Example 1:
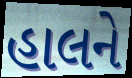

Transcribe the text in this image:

હાલને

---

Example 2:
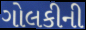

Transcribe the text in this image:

ગોલકીની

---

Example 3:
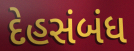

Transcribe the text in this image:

દેહસંબંધ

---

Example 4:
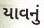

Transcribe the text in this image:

યાવનું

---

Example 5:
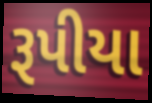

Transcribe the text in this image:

રૂપીયા